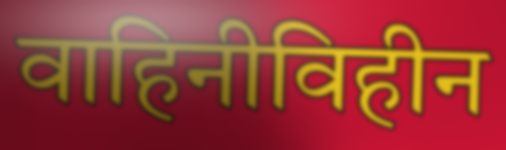
वाहिनीविहीन